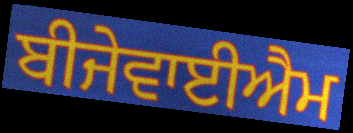
ਬੀਜੇਵਾਈਐਮ